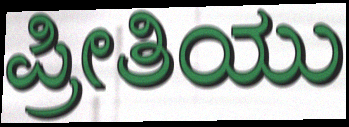
ಪ್ರೀತಿಯು